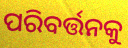
ପରିବର୍ତ୍ତନକୁ